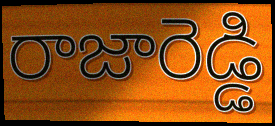
రాజారెడ్డి